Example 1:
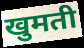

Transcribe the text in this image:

खुमती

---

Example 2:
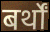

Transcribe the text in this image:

बर्थों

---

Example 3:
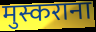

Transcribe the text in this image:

मुस्कराना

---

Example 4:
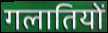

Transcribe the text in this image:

गलातियों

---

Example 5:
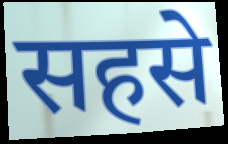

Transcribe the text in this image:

सहसे